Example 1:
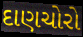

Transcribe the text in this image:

દાણચોરો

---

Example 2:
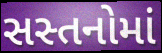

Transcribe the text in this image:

સસ્તનોમાં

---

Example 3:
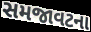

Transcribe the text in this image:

સમજાવટના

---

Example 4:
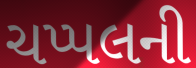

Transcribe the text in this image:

ચપ્પલની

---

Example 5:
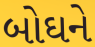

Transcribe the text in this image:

બોઘને